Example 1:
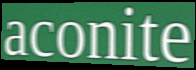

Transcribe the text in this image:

aconite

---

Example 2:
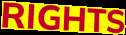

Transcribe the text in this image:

RIGHTS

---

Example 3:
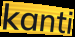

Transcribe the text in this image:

kanti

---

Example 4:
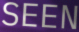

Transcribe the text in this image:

SEEN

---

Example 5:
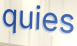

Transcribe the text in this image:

quies